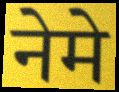
नेमे